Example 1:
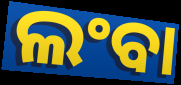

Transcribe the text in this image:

ଲଂବା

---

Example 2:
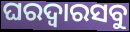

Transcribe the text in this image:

ଘରଦ୍ୱାରସବୁ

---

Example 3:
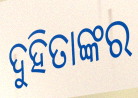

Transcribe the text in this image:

ଦୁହିତାଙ୍କର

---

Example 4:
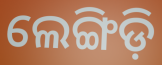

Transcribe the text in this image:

ଲେଙ୍ଗିଡ଼ି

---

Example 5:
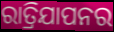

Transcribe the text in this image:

ରାତ୍ରିଯାପନର